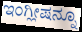
ಇಂಗ್ಲೀಷನ್ನೂ